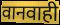
वानवाही